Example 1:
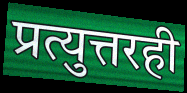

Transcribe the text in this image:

प्रत्युत्तरही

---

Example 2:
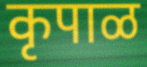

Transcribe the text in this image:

कृपाळ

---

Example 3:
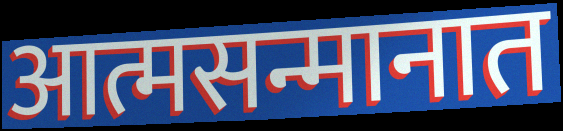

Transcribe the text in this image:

आत्मसन्मानात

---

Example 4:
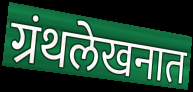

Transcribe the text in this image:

ग्रंथलेखनात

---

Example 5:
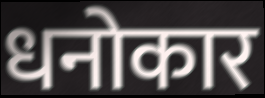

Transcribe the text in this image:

धनोकार